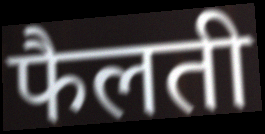
फैलती